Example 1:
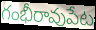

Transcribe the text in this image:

గంభీరావుపేట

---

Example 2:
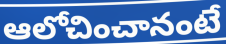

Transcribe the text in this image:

ఆలోచించానంటే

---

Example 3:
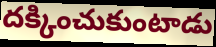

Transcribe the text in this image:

దక్కించుకుంటాడు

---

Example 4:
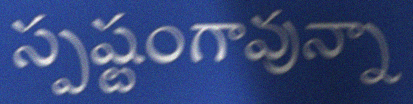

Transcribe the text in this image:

స్పష్టంగావున్నా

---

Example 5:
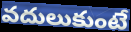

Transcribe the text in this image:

వదులుకుంటే